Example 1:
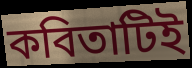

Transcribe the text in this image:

কবিতাটিই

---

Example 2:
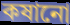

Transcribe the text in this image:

কষানো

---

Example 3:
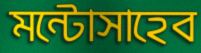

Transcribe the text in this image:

মন্টোসাহেব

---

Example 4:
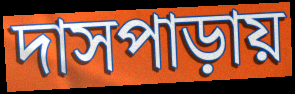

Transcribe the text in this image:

দাসপাড়ায়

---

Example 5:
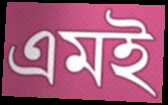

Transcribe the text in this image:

এমই